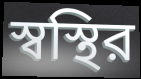
স্বস্থির